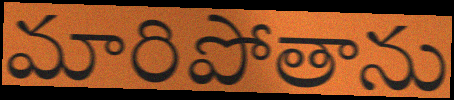
మారిపోతాను